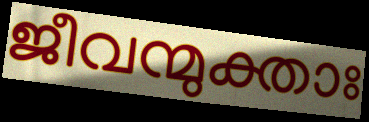
ജീവന്മുക്താഃ